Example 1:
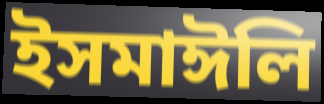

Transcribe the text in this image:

ইসমাঈলি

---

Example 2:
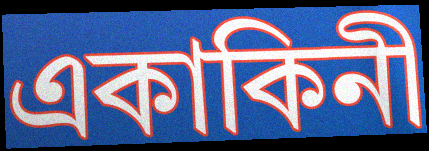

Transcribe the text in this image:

একাকিনী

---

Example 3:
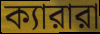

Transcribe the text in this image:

ক্যারারা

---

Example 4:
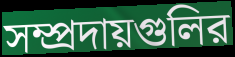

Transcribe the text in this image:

সম্প্রদায়গুলির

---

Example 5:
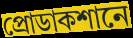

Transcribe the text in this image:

প্রোডাকশানে